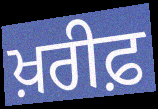
ਖ਼ਰੀਫ਼